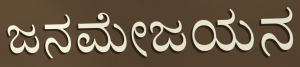
ಜನಮೇಜಯನ